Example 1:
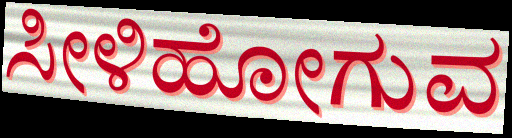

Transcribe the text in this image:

ಸೀಳಿಹೋಗುವ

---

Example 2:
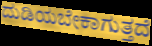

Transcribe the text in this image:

ದುಡಿಯಬೇಕಾಗುತ್ತದೆ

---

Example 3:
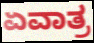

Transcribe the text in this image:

ಏವಾತ್ರ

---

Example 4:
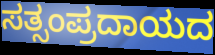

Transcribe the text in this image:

ಸತ್ಸಂಪ್ರದಾಯದ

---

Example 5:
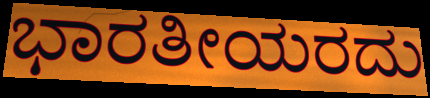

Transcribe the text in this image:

ಭಾರತೀಯರದು